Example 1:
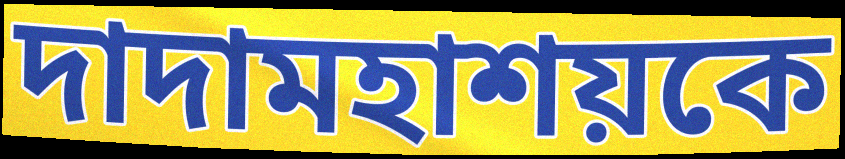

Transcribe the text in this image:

দাদামহাশয়কে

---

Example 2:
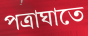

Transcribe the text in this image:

পত্রাঘাতে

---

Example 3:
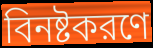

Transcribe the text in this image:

বিনষ্টকরণে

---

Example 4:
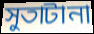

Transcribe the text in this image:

সুতাটানা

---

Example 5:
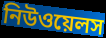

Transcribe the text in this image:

নিউওয়েলস